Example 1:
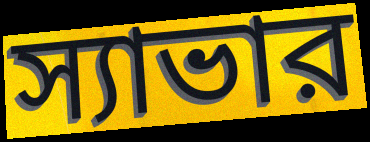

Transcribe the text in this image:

স্যাভার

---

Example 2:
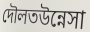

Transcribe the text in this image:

দৌলতউন্নেসা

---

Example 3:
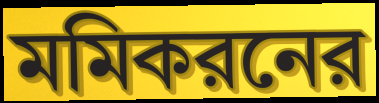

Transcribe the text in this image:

মমিকরনের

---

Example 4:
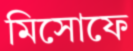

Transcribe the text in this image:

মিসোফে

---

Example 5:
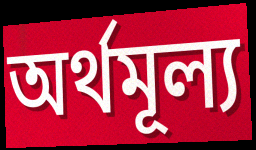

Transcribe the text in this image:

অর্থমূল্য